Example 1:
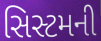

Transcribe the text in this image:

સિસ્ટમની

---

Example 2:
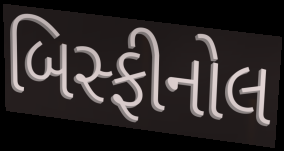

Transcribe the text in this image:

બિસ્ફીનોલ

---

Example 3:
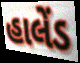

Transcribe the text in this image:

હાલેંડ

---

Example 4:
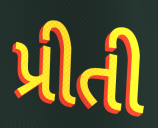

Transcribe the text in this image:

પ્રીતી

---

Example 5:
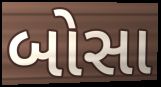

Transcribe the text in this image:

બોસા